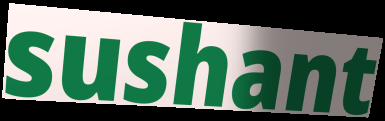
sushant